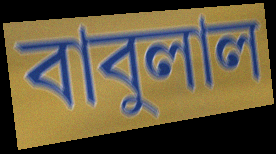
বাবুলাল